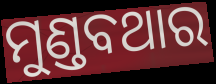
ମୁଣ୍ଡବଥାର